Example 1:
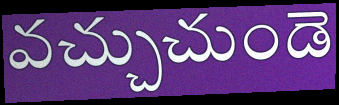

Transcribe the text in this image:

వచ్చుచుండె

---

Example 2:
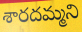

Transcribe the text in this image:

శారదమ్మని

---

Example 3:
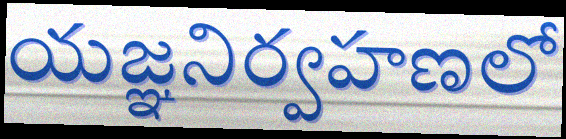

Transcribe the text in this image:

యజ్ఞనిర్వహణలో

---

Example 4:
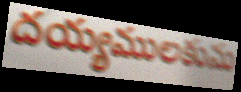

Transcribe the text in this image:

దయ్యములకును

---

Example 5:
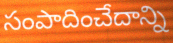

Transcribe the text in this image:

సంపాదించేదాన్ని